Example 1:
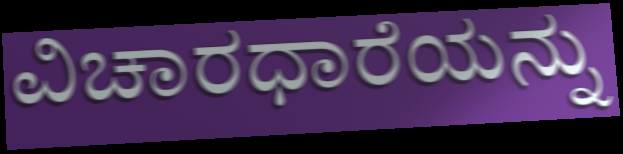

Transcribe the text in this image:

ವಿಚಾರಧಾರೆಯನ್ನು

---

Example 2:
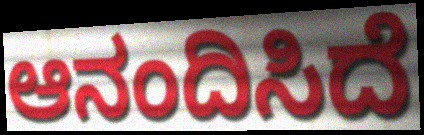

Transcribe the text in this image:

ಆನಂದಿಸಿದೆ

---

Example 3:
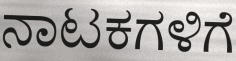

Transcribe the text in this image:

ನಾಟಕಗಳಿಗೆ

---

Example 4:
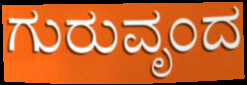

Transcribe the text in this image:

ಗುರುವೃಂದ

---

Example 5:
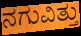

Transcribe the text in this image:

ನಗುವಿತ್ತು